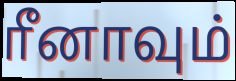
ரீனாவும்